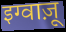
इग्वाज़ू